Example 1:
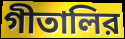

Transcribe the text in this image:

গীতালির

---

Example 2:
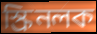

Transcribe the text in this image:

স্ক্রিনলক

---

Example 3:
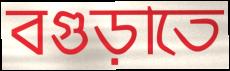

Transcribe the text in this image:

বগুড়াতে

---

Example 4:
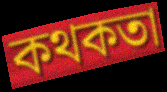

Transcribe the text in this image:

কথকতা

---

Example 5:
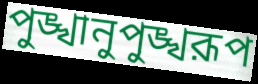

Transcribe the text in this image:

পুঙ্খানুপুঙ্খরূপ